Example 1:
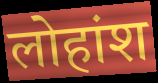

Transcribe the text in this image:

लोहांश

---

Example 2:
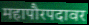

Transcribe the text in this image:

महापौरपदावर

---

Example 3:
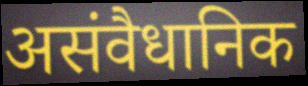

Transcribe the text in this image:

असंवैधानिक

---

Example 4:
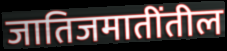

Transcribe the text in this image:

जातिजमातींतील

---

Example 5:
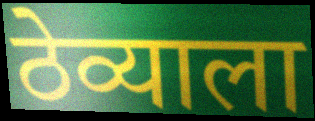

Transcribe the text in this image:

ठेव्याला